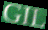
GIL